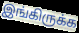
இங்கிருக்க